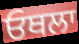
ਓਥਲਾ